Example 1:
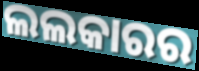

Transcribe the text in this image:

ଲଲକାରର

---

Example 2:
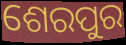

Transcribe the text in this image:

ଶେରପୁର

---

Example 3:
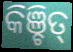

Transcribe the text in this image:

କିଞ୍ଚିତ୍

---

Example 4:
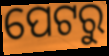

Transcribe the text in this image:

ପେଟରୁ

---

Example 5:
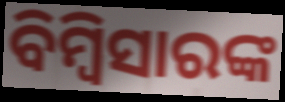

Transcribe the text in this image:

ବିମ୍ବିସାରଙ୍କ